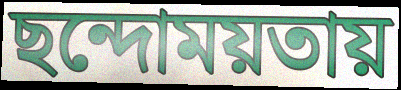
ছন্দোময়তায়